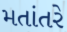
મતાંતરે